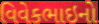
વિવેકભાઇનો